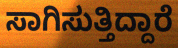
ಸಾಗಿಸುತ್ತಿದ್ದಾರೆ